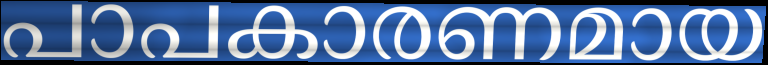
പാപകാരണമായ